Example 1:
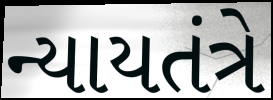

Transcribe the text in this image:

ન્યાયતંત્રે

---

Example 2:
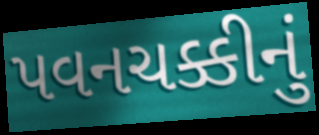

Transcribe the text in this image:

પવનચક્કીનું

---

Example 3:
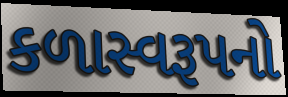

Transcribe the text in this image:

કળાસ્વરૂપનો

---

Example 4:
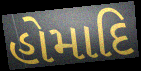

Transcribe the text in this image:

હોમાદિ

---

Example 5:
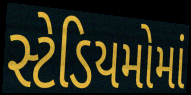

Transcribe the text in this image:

સ્ટેડિયમોમાં